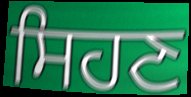
ਸਿਹਣ